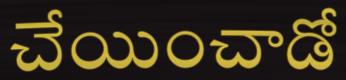
చేయించాడో